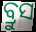
ବ୍ରୁସ